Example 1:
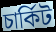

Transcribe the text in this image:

চাৰ্কিট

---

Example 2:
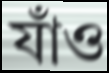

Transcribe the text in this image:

যাঁও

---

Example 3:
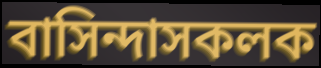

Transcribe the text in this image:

বাসিন্দাসকলক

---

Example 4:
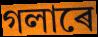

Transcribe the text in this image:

গলাৰে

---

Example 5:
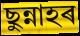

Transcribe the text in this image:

ছুন্নাহৰ